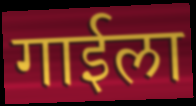
गाईला